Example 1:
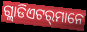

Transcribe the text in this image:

ଗ୍ଲାଡିଏଟର୍‍ମାନେ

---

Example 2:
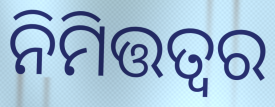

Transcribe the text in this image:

ନିମିତ୍ତତ୍ଵର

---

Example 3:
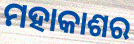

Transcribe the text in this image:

ମହାକାଶର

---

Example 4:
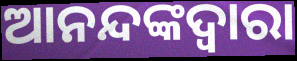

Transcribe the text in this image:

ଆନନ୍ଦଙ୍କଦ୍ୱାରା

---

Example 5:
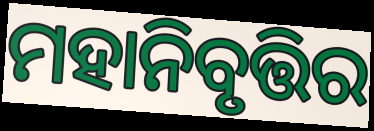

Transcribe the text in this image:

ମହାନିବୃତ୍ତିର